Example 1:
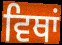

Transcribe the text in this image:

ਵਿਥਾਂ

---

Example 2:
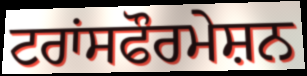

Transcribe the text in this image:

ਟਰਾਂਸਫੌਰਮੇਸ਼ਨ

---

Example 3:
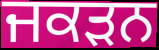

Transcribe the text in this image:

ਜਕੜਨ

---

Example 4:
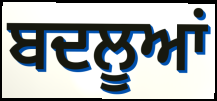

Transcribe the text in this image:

ਬਦਲੂਆਂ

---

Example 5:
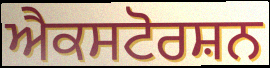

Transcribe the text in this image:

ਐਕਸਟੋਰਸ਼ਨ